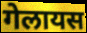
गेलायस